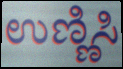
ಉಣ್ಣಿಸಿ